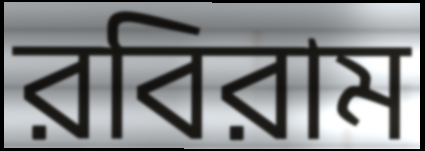
রবিরাম